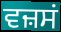
ਵਜ਼ਸਂ